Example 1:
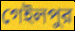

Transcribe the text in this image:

গেইলপুর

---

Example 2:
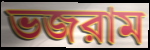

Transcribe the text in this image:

ভজরাম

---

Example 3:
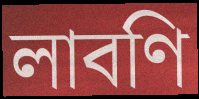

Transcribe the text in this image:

লাবণি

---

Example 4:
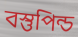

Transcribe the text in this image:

বস্তুপিন্ড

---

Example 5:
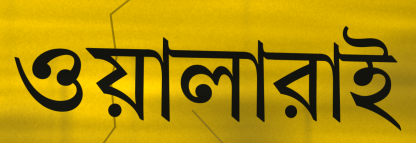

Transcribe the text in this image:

ওয়ালারাই